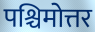
पश्चिमोत्तर